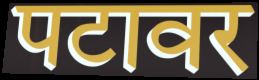
पटावर